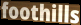
foothills